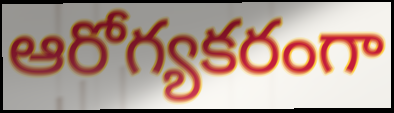
ఆరోగ్యకరంగా